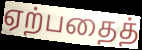
ஏற்பதைத்